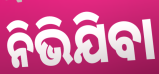
ନିଭିଯିବା